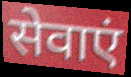
सेवाएं